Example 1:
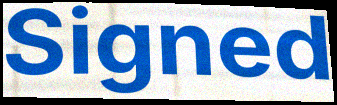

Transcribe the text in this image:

Signed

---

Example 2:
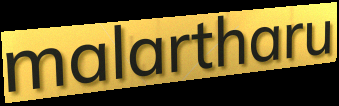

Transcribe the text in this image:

malartharu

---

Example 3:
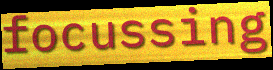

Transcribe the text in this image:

focussing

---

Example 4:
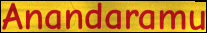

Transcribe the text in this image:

Anandaramu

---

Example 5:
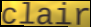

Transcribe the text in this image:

clair